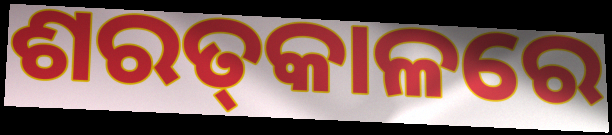
ଶରତ୍‌କାଳରେ